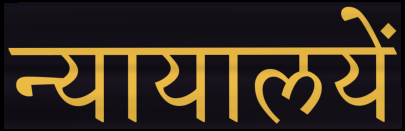
न्यायालयें